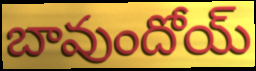
బావుందోయ్